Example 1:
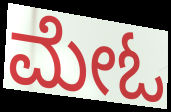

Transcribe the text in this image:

ಮೇಓ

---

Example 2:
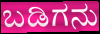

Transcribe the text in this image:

ಬಡಿಗನು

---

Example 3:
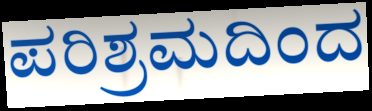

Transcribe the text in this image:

ಪರಿಶ್ರಮದಿಂದ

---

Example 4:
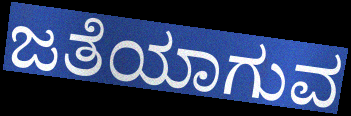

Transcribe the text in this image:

ಜತೆಯಾಗುವ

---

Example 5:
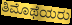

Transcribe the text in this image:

ತಿಮೊಥೆಯರು